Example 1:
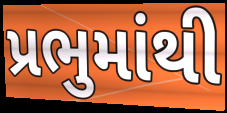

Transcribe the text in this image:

પ્રભુમાંથી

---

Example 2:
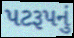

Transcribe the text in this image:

પટરૂપનું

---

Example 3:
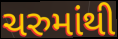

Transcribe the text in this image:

ચરુમાંથી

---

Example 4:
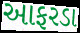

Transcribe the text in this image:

આફરડા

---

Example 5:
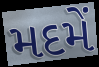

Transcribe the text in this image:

મદમેં